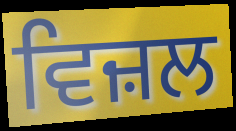
ਵਿਜ਼ਲ